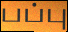
பப்பு